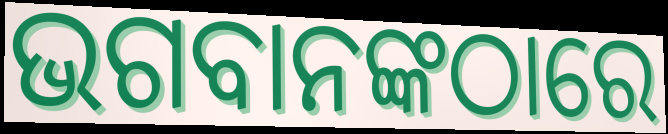
ଭଗବାନଙ୍କଠାରେ